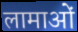
लामाओं